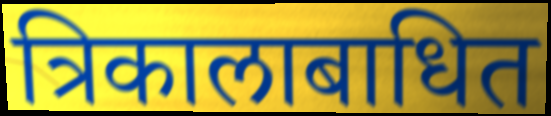
त्रिकालाबाधित